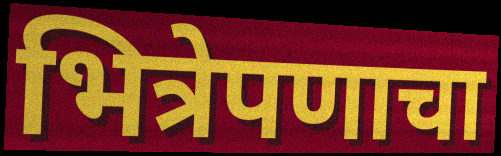
भित्रेपणाचा